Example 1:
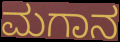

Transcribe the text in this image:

ಮಗಾನ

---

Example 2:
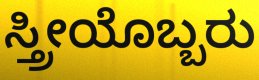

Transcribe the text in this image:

ಸ್ತ್ರೀಯೊಬ್ಬರು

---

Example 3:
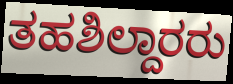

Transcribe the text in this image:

ತಹಶಿಲ್ದಾರರು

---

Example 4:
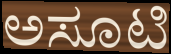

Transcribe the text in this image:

ಅಸೂಟಿ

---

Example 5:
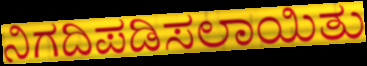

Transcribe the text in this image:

ನಿಗದಿಪಡಿಸಲಾಯಿತು